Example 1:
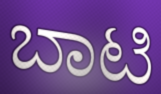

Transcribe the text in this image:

ಬಾಟಿ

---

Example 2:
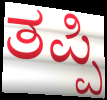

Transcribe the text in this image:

ತಪ್ಪಿ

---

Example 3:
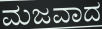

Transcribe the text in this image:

ಮಜವಾದ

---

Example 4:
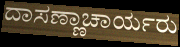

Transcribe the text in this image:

ದಾಸಣ್ಣಾಚಾರ್ಯರು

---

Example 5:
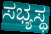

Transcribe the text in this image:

ಸಭ್ಯಸ್ಥ